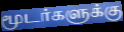
மூடர்களுக்கு